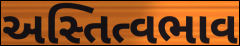
અસ્તિત્વભાવ